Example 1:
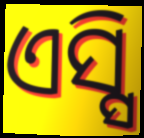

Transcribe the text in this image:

ଏସ୍ସି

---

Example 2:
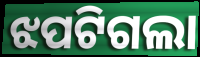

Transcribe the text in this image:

ଝପଟିଗଲା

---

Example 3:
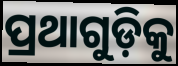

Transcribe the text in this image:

ପ୍ରଥାଗୁଡ଼ିକୁ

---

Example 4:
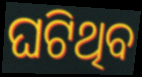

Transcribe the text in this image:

ଘଟିଥିବ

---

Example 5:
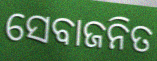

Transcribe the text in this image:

ସେବାଜନିତ